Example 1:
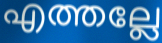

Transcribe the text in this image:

എത്തല്ലേ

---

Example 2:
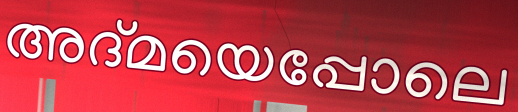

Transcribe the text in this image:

അദ്മയെപ്പോലെ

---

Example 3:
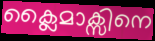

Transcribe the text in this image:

ക്ലൈമാക്സിനെ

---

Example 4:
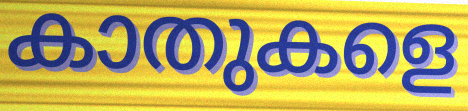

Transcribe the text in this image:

കാതുകളെ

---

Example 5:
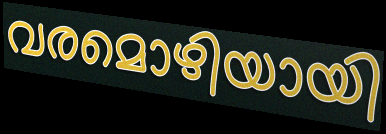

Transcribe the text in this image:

വരമൊഴിയായി